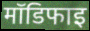
मॉडिफाइ